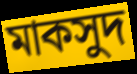
মাকসুদ